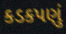
કડકપણું